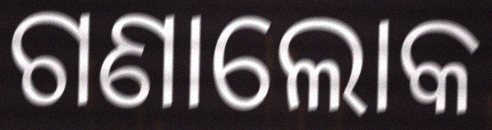
ଗଣାଲୋକ